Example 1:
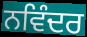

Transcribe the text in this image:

ਨਵਿੰਦਰ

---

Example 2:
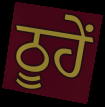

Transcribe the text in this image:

ਠੂਹੇਂ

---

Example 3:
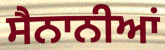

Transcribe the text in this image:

ਸੈਨਾਨੀਆਂ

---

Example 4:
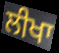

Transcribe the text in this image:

ਲੀਖਾ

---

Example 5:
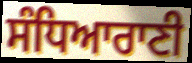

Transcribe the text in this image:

ਸੰਧਿਆਰਾਣੀ